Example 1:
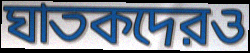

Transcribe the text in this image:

ঘাতকদেরও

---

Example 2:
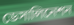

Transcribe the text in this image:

ডেসালিনেশন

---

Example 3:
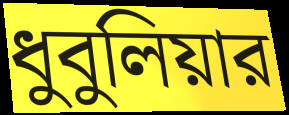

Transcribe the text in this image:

ধুবুলিয়ার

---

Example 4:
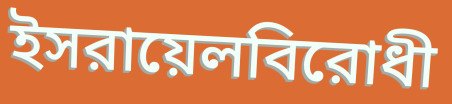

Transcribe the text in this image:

ইসরায়েলবিরোধী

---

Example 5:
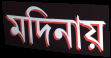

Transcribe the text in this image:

মদিনায়